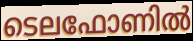
ടെലഫോണിൽ